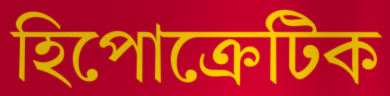
হিপোক্রেটিক